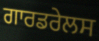
ਗਾਰਡਰੇਲਸ